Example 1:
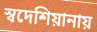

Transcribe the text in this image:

স্বদেশিয়ানায়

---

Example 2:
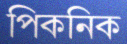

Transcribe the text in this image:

পিকনিক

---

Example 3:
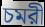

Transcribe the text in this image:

চমরী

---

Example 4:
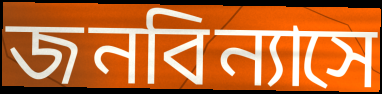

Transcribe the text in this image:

জনবিন্যাসে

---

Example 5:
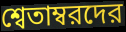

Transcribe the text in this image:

শ্বেতাম্বরদের